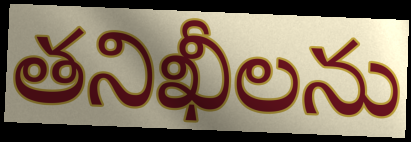
తనిఖీలను